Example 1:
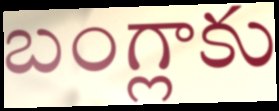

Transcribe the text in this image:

బంగ్లాకు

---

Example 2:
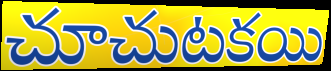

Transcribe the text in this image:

చూచుటకయి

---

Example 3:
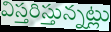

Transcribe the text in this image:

విస్తరిస్తున్నట్లు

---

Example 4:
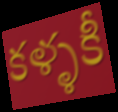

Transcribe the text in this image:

కళ్ళకీ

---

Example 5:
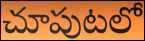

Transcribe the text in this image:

చూపుటలో